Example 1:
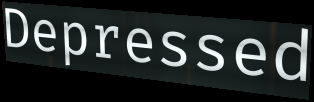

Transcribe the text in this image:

Depressed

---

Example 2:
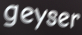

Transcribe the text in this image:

geyser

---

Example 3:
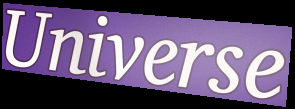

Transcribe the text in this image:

Universe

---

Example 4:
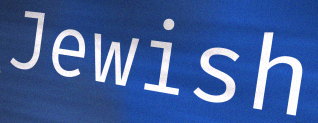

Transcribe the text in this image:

Jewish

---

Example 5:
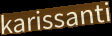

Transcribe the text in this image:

karissanti